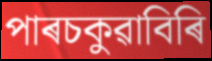
পাৰচকুৱাবিৰি